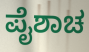
ಪೈಶಾಚ